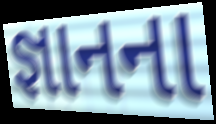
જ્ઞાનના